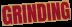
GRINDING